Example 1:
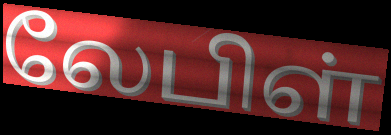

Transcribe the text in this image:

லேபிள்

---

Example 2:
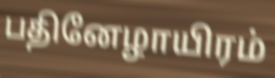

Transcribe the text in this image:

பதினேழாயிரம்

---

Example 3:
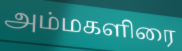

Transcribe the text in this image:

அம்மகளிரை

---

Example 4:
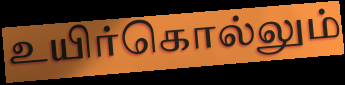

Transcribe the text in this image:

உயிர்கொல்லும்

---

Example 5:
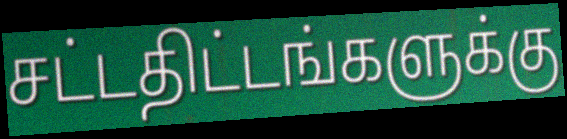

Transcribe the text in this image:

சட்டதிட்டங்களுக்கு